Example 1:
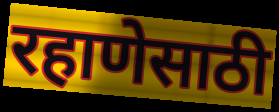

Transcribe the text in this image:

रहाणेसाठी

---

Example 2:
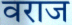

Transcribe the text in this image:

वराज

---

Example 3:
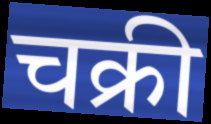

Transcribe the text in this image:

चक्री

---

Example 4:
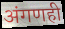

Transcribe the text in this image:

अंगणही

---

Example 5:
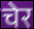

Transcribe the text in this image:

चेर